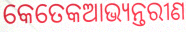
କେତେକଆଭ୍ୟନ୍ତରୀଣ